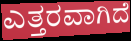
ಎತ್ತರವಾಗಿದೆ